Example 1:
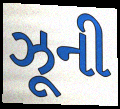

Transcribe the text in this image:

ઝૂની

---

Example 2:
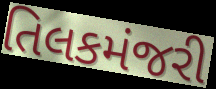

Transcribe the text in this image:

તિલકમંજરી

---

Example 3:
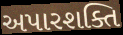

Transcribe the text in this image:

અપારશક્તિ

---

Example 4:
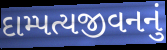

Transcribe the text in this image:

દામ્પત્યજીવનનું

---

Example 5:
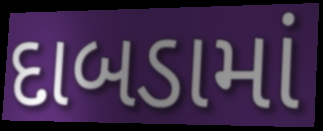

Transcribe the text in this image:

દાબડામાં